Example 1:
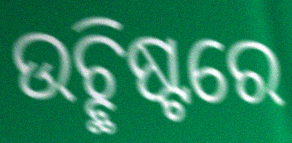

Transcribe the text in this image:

ଉଚ୍ଛିଷ୍ଟରେ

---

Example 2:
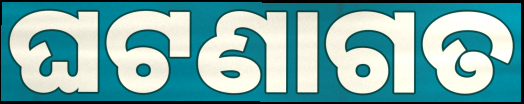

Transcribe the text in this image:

ଘଟଣାଗତ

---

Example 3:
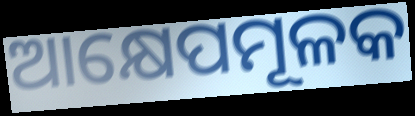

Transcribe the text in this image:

ଆକ୍ଷେପମୂଳକ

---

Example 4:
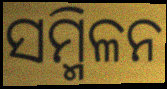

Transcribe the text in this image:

ସମ୍ମିଳନ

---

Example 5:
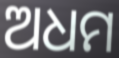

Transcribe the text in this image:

ଅଧମ